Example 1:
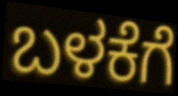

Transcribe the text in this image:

ಬಳಕೆಗೆ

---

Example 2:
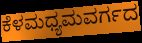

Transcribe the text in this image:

ಕೆಳಮಧ್ಯಮವರ್ಗದ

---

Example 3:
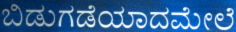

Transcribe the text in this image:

ಬಿಡುಗಡೆಯಾದಮೇಲೆ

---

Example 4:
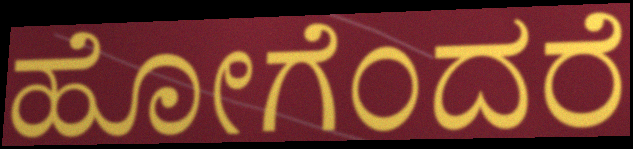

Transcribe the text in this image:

ಹೋಗೆಂದರೆ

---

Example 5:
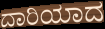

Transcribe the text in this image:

ದಾರಿಯಾದ